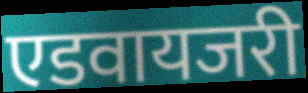
एडवायजरी